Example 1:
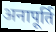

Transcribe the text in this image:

अनापूर्ति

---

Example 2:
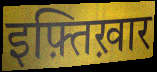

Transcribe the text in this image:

इफ़्तिख़ार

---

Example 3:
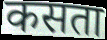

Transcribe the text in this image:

कसता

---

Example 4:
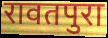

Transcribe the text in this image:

रावतपुरा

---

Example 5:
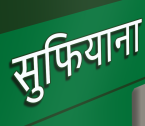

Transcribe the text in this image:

सुफियाना